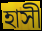
হাসী